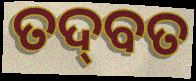
ତଦ୍‌ବତ